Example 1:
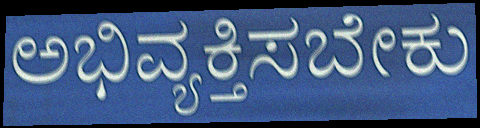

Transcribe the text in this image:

ಅಭಿವ್ಯಕ್ತಿಸಬೇಕು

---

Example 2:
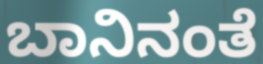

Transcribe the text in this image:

ಬಾನಿನಂತೆ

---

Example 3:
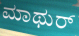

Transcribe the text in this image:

ಮಾಥುರ್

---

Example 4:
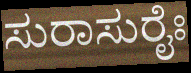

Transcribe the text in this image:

ಸುರಾಸುರೈಃ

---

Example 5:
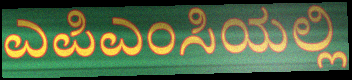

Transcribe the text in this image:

ಎಪಿಎಂಸಿಯಲ್ಲಿ